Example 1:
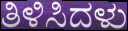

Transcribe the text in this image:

ತಿಳಿಸಿದಳು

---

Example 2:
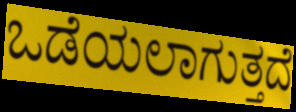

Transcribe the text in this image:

ಒಡೆಯಲಾಗುತ್ತದೆ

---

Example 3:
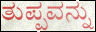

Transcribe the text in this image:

ತುಪ್ಪವನ್ನು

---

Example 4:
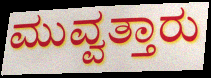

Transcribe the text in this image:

ಮುವ್ವತ್ತಾರು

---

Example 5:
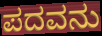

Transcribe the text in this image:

ಪದವನು